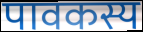
पावकस्य